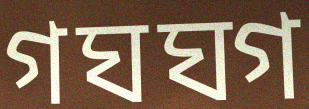
গঘঘগ